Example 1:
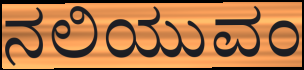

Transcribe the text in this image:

ನಲಿಯುವಂ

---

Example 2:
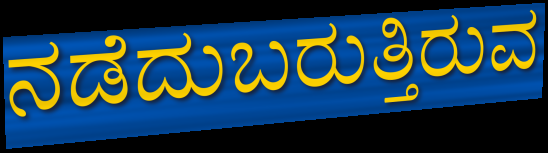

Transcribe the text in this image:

ನಡೆದುಬರುತ್ತಿರುವ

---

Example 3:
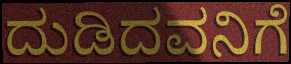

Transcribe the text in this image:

ದುಡಿದವನಿಗೆ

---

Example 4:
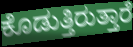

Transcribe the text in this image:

ಕೊಡುತ್ತಿರುತ್ತಾರೆ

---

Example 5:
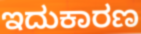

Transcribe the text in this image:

ಇದುಕಾರಣ